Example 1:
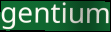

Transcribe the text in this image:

gentium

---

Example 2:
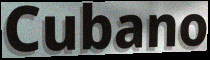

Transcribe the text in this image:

Cubano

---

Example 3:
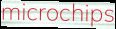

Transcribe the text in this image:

microchips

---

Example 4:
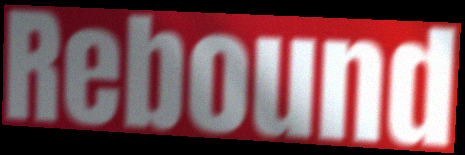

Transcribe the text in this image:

Rebound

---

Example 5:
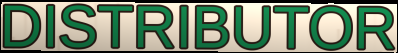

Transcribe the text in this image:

DISTRIBUTOR